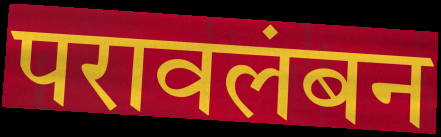
परावलंबन